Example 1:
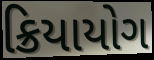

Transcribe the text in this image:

ક્રિયાયોગ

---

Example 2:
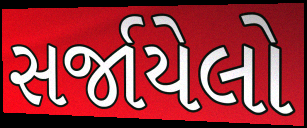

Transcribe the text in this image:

સર્જાયેલો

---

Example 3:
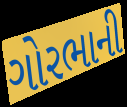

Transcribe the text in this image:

ગોરભાની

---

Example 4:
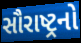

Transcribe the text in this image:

સૌરાષ્ટ્રનો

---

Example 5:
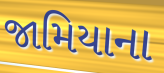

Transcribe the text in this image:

જામિયાના